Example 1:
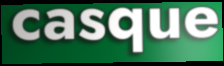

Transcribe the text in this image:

casque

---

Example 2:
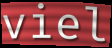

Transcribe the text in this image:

viel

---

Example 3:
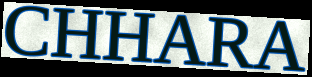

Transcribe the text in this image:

CHHARA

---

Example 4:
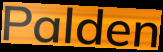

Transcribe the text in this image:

Palden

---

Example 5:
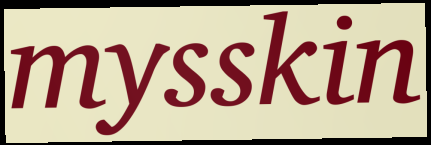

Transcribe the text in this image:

mysskin